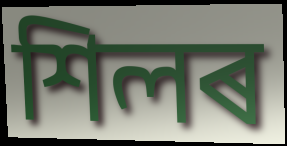
শিলৰ